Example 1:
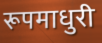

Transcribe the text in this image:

रूपमाधुरी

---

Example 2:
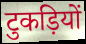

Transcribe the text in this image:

टुकड़ियों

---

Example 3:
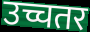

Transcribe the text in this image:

उच्चतर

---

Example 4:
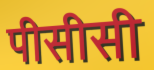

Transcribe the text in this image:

पीसीसी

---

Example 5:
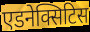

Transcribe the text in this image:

एडनेक्सिटिस